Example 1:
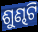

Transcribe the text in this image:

ଶୁଣ୍ଢଟି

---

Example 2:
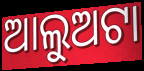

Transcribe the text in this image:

ଆଲୁଅଟା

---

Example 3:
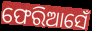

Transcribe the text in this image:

ଫେରିଆସେଁ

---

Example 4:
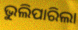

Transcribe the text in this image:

ଭୁଲିପାରିଲା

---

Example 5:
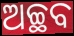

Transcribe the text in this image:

ଅଚ୍ଛବ